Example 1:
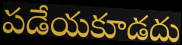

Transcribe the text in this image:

పడేయకూడదు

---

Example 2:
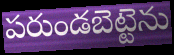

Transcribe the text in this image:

పరుండబెట్టెను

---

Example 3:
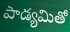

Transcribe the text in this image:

పాడ్యమితో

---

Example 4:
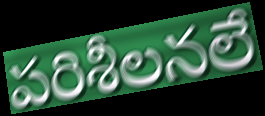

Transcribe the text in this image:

పరిశీలనలే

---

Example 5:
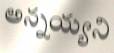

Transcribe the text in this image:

అన్నయ్యని